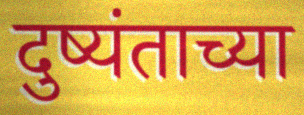
दुष्यंताच्या